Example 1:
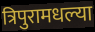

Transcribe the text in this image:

त्रिपुरामधल्या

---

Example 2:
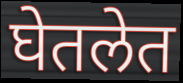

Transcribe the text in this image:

घेतलेत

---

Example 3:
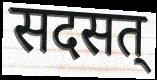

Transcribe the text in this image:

सदसत्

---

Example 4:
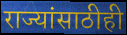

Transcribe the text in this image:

राज्यांसाठीही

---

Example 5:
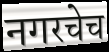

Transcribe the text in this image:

नगरचेच